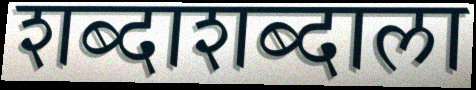
शब्दाशब्दाला